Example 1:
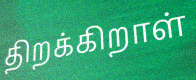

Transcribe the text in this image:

திறக்கிறாள்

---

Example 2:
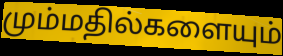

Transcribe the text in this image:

மும்மதில்களையும்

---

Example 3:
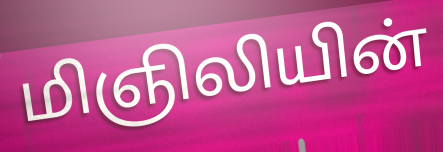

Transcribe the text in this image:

மிஞிலியின்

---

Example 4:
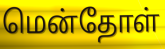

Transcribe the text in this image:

மென்தோள்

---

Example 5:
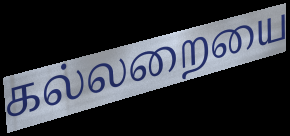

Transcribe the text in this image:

கல்லறையை